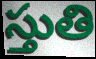
స్తుతి